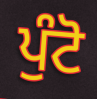
ਪੁੰਟੋ